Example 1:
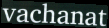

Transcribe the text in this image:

vachanat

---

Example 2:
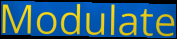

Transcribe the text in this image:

Modulate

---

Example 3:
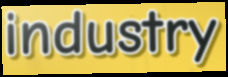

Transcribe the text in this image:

industry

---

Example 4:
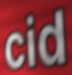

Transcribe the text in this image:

cid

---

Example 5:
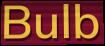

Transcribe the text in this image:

Bulb